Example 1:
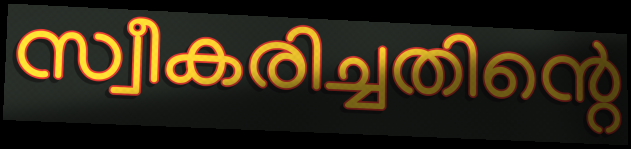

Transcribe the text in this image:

സ്വീകരിച്ചതിന്റെ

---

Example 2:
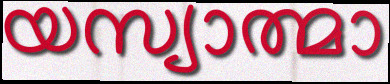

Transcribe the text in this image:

യസ്യാത്മാ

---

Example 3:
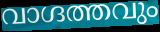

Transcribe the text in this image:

വാഗ്ദത്തവും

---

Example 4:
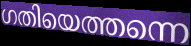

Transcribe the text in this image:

ഗതിയെത്തന്നെ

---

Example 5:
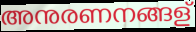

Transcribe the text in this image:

അനുരണനങ്ങള്